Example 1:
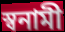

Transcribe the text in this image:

স্বনামী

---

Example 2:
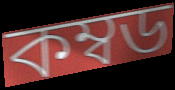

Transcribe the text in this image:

কম্বড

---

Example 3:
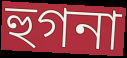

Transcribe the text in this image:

হুগনা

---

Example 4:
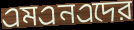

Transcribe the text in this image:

এমএনএদের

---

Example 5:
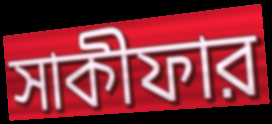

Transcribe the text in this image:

সাকীফার